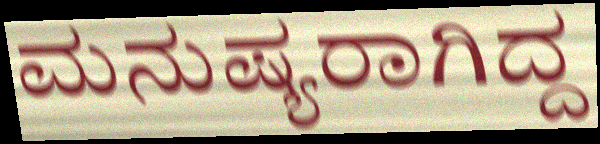
ಮನುಷ್ಯರಾಗಿದ್ದ